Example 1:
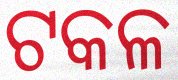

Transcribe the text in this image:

ଟକଳ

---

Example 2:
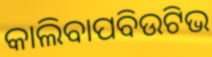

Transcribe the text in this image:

କାଲିବାପବିଉଟିଭ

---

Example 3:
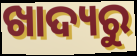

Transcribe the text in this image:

ଖାଦ୍ୟରୁ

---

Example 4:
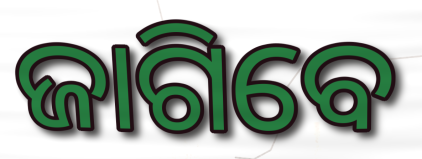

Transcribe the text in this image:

ଜାଗିବେ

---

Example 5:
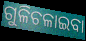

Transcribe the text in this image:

ଗୁଳିଚଳାଇବା